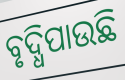
ବୃଦ୍ଧିପାଉଛି